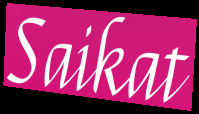
Saikat